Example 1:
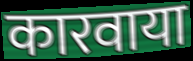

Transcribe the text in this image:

कारवाया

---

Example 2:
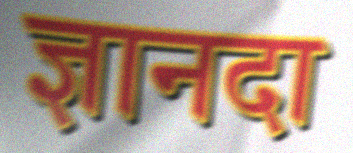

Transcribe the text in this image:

ज्ञानदा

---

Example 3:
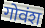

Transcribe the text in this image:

गोवंश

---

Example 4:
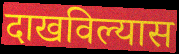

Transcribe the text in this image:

दाखविल्यास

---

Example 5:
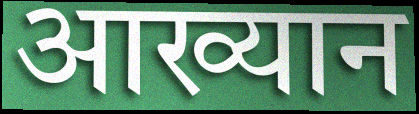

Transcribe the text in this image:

आख्यान